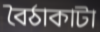
বৈঠাকাটা